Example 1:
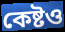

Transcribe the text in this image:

কেষ্টও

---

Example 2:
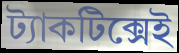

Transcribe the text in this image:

ট্যাকটিক্সেই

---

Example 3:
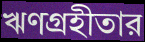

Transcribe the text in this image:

ঋণগ্রহীতার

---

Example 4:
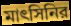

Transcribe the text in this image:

মাৎসিনির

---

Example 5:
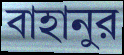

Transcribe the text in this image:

বাহানুর